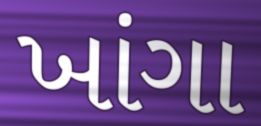
ખાંગા